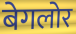
बेगलोर